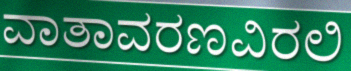
ವಾತಾವರಣವಿರಲಿ